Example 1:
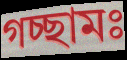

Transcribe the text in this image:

গচ্ছামঃ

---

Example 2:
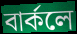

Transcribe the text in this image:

বার্কলে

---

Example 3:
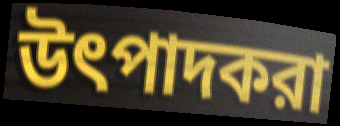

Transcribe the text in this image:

উৎপাদকরা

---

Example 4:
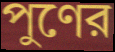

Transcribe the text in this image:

পুণের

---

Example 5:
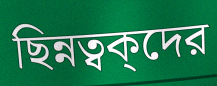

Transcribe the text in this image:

ছিন্নত্বক্দের